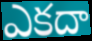
ఎకదా